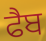
ਫੈਬ